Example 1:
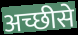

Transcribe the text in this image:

अच्छीसे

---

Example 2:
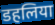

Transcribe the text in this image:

डहलिया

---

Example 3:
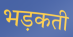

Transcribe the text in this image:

भड़कती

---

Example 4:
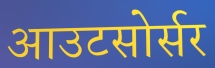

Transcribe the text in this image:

आउटसोर्सर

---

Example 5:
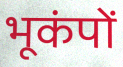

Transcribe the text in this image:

भूकंपों